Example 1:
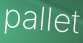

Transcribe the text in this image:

pallet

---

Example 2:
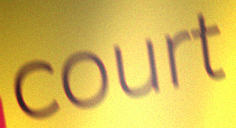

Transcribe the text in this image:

court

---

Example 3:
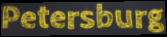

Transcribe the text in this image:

Petersburg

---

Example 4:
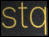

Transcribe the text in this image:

stq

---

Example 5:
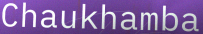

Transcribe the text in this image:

Chaukhamba